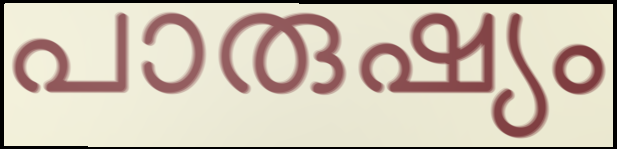
പാരുഷ്യം